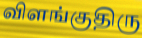
விளங்குதிரு